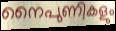
നൈപുണികളും